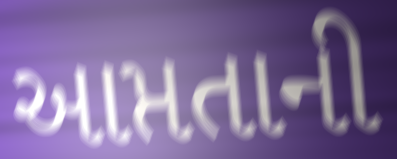
આપ્તતાની